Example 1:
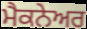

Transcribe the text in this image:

ਮੈਕਨੇਅਰ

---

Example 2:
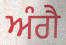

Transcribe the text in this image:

ਅੰਗੈ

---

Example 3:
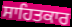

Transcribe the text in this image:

ਸਾਹਿਤਕਾਰ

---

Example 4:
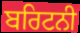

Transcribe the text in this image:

ਬਰਿਟਨੀ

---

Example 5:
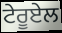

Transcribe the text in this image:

ਟੇਰੂਏਲ